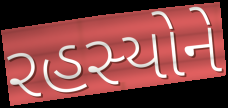
રહસ્યોને